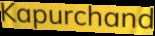
Kapurchand